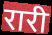
रारी